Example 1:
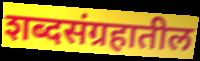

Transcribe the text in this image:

शब्दसंग्रहातील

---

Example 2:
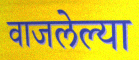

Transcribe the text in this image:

वाजलेल्या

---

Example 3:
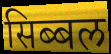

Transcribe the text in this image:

सिब्बल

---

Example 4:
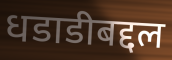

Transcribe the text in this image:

धडाडीबद्दल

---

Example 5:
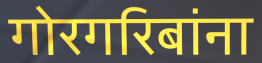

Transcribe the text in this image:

गोरगरिबांना